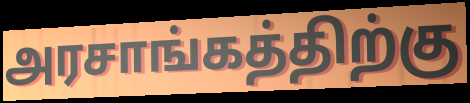
அரசாங்கத்திற்கு